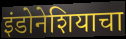
इंडोनेशियाचा